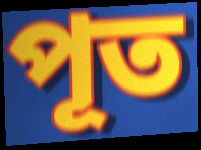
পূত